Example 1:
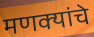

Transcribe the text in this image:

मणक्यांचे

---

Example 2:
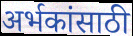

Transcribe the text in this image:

अर्भकांसाठी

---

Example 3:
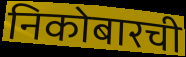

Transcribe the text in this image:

निकोबारची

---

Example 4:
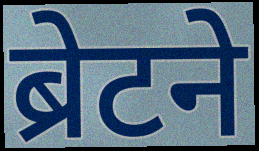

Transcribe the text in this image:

ब्रेटने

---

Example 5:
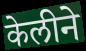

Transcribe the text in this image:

केलीने